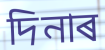
দিনাৰ